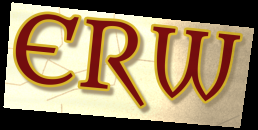
ERW